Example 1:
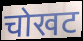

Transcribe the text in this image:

चोखट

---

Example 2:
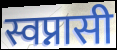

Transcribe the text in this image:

स्वप्नासी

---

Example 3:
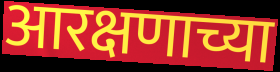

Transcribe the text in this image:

आरक्षणाच्या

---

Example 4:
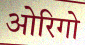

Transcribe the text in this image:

ओरिगो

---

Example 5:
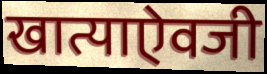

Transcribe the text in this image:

खात्याऐवजी